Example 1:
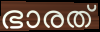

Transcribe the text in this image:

ഭാരത്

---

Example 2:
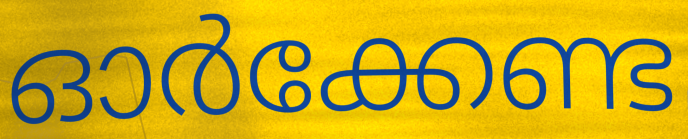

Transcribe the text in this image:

ഓർക്കേണ്ട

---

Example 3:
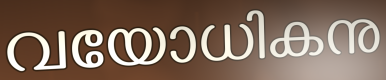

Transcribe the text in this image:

വയോധികനു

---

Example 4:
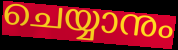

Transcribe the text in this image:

ചെയ്യാനും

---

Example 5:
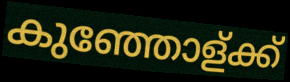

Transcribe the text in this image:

കുഞ്ഞോള്ക്ക്